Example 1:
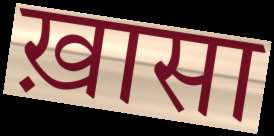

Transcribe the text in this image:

ख़ासा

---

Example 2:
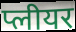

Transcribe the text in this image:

प्लीयर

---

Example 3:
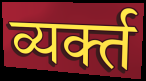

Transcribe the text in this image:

व्यर्क्त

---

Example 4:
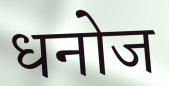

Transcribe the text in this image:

धनोज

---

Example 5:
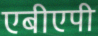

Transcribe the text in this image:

एबीएपी